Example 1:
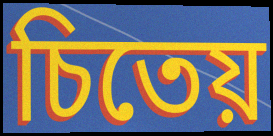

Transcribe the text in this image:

চিতেয়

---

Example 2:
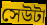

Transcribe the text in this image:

সেউটা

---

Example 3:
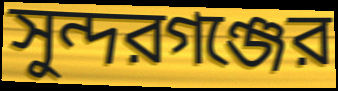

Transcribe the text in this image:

সুন্দরগঞ্জের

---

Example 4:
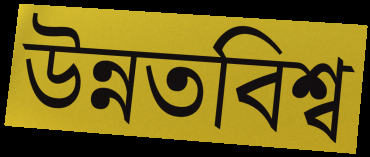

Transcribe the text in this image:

উন্নতবিশ্ব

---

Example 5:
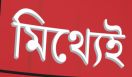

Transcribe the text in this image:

মিথ্যেই